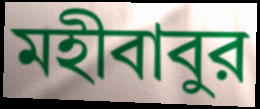
মহীবাবুর